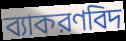
ব্যাকরণবিদ